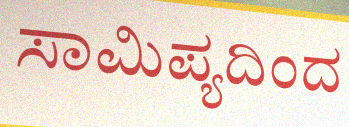
ಸಾಮಿಪ್ಯದಿಂದ